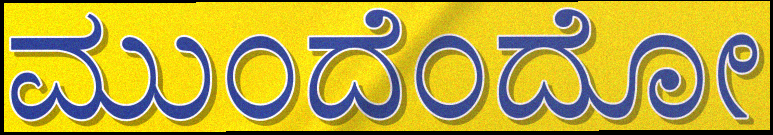
ಮುಂದೆಂದೋ